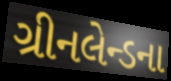
ગ્રીનલેન્ડના